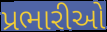
પ્રભારીઓ